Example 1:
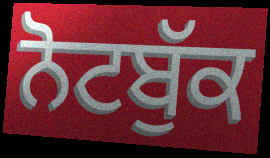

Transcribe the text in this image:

ਨੋਟਬੁੱਕ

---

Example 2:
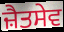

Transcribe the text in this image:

ਜ਼ੈਤਸੇਵ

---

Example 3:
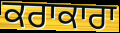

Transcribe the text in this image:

ਕਰਾਕਾਰਾ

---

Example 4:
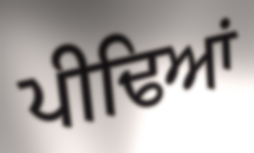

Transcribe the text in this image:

ਪੀਢਿਆਂ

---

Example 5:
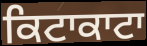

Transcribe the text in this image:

ਕਿਟਾਕਾਟਾ